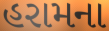
હરામના